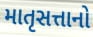
માતૃસત્તાનો